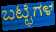
ಬಟ್ಟೆಗಳ